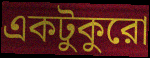
একটুকুরো